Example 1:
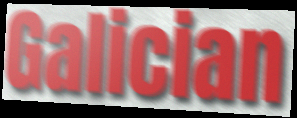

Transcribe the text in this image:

Galician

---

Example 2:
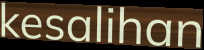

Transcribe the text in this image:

kesalihan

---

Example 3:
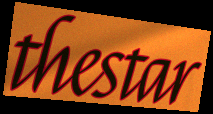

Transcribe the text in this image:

thestar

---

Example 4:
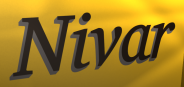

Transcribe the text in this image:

Nivar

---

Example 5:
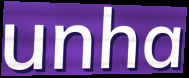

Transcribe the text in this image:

unha